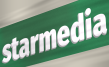
starmedia